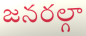
జనరల్గా